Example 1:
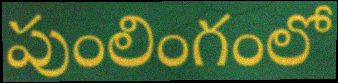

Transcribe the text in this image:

పుంలింగంలో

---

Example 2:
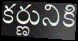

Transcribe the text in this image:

కర్ణునికి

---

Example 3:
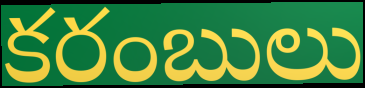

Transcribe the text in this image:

కరంబులు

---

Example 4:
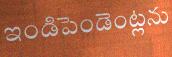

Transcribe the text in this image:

ఇండిపెండెంట్లను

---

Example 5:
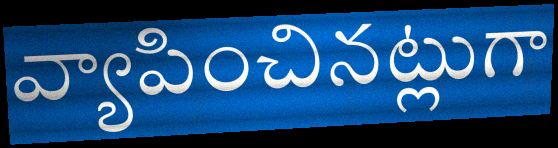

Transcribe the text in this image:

వ్యాపించినట్లుగా